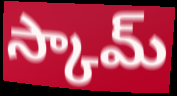
స్కామ్